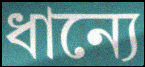
ধান্যে